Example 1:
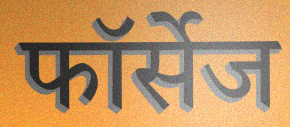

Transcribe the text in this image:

फॉर्सेज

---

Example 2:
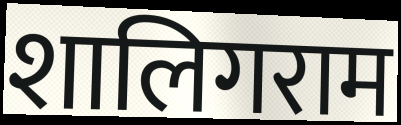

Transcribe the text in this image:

शालिगराम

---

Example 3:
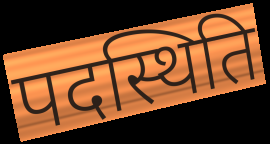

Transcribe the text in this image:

पदस्थिति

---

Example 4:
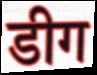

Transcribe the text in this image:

डीग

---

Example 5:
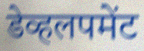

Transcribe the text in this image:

डेव्हलपमेंट